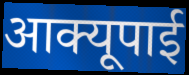
आक्यूपाई